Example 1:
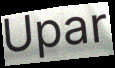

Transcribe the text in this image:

Upar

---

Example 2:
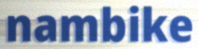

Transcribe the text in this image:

nambike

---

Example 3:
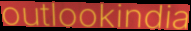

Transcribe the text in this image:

outlookindia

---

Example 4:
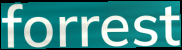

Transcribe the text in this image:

forrest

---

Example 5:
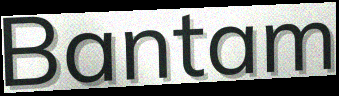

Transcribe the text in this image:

Bantam